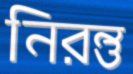
নিরন্তু